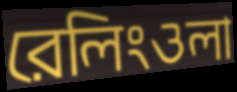
রেলিংওলা